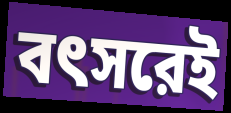
বৎসরেই